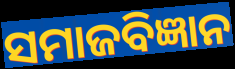
ସମାଜବିଜ୍ଞାନ